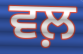
ਵਲ਼